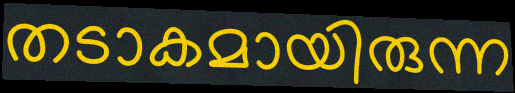
തടാകമായിരുന്ന